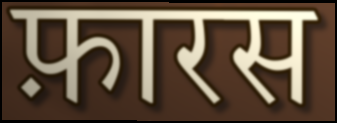
फ़ारस